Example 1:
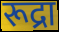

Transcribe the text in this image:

रूद्रा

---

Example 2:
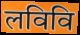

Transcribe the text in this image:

लविवि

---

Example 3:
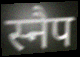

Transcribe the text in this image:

स्नैप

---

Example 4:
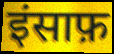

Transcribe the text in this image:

इंसाफ़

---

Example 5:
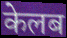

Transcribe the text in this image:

केलब